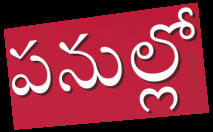
పనుల్లో